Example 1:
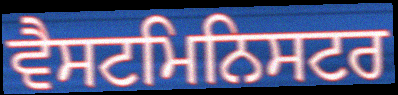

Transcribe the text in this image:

ਵੈਸਟਮਿਨਿਸਟਰ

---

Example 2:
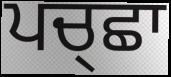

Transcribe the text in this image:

ਪਚ੍ਛਾ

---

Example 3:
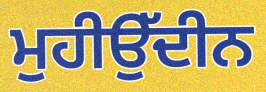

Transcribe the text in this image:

ਮੁਹੀਉੱਦੀਨ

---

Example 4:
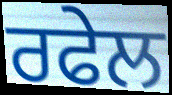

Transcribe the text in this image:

ਰਫੇਲ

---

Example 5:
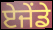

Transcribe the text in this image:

ਏਜੇਂਡੇ